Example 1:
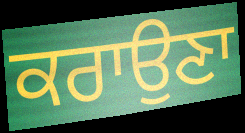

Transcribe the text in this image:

ਕਰਾਉਣਾ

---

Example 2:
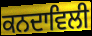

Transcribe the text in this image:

ਕਨਦਾਵਿਲੀ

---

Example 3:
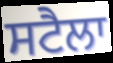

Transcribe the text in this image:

ਸਟੈਲਾ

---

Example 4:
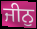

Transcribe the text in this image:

ਜੀਨੁ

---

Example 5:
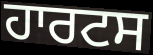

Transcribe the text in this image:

ਹਾਰਟਸ